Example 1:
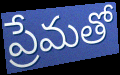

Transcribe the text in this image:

ప్రేమతో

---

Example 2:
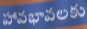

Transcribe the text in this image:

హావభావలకు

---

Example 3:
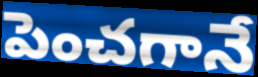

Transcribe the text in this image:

పెంచగానే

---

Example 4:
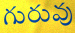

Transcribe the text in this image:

గురువు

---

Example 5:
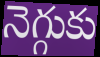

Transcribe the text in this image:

నెగ్గుకు